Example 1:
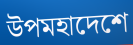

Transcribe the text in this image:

উপমহাদেশে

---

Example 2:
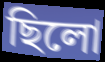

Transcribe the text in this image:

ছিলো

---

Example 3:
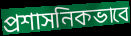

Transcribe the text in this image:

প্রশাসনিকভাবে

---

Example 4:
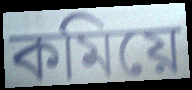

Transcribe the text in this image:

কমিয়ে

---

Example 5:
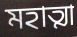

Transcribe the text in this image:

মহাত্মা